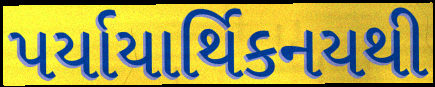
પર્યાયાર્થિકનયથી